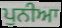
ਪੁਨੀਆ